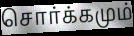
சொர்க்கமும்